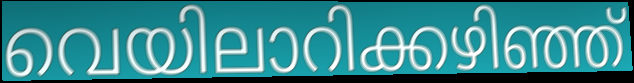
വെയിലാറിക്കഴിഞ്ഞ്